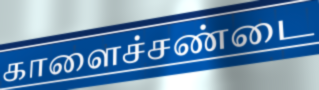
காளைச்சண்டை